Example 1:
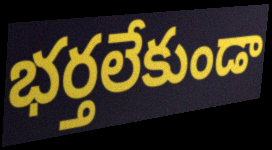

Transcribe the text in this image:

భర్తలేకుండా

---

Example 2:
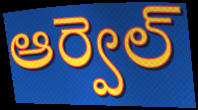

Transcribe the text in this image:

ఆర్వెల్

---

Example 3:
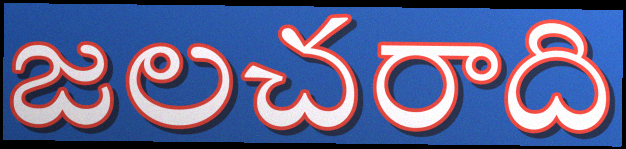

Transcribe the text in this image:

జలచరాది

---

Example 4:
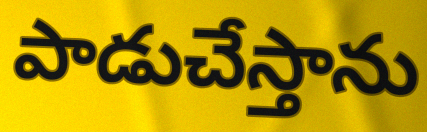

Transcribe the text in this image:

పాడుచేస్తాను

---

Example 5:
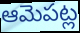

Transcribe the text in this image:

ఆమెపట్ల